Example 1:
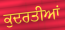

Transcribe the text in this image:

ਕੁਦਰਤੀਆਂ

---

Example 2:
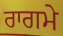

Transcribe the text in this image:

ਰਾਗਮੇ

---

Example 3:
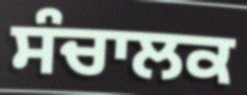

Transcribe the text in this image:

ਸੰਚਾਲਕ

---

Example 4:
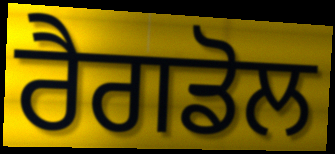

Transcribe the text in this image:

ਰੈਗਡੋਲ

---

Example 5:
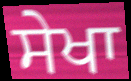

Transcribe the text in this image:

ਸੇਖਾ